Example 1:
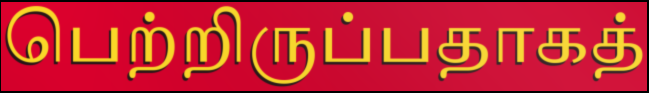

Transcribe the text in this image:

பெற்றிருப்பதாகத்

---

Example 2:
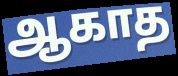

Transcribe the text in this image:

ஆகாத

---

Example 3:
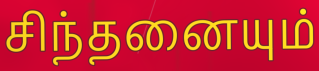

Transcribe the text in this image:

சிந்தனையும்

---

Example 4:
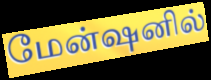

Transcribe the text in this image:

மேன்ஷனில்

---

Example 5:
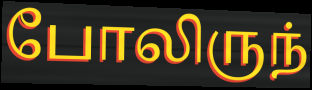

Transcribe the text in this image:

போலிருந்